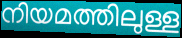
നിയമത്തിലുള്ള